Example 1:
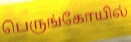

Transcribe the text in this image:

பெருங்கோயில்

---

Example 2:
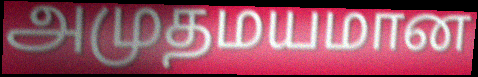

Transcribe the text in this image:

அமுதமயமான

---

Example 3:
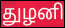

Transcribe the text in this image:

துழனி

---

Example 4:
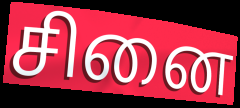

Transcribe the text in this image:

சினை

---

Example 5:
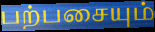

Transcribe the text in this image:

பற்பசையும்